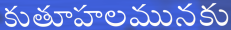
కుతూహలమునకు